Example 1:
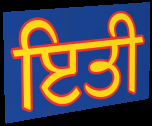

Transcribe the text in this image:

ਇਤੀ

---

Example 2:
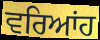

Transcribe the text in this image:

ਵਰਿਆਂਹ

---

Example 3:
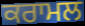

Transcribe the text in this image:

ਕਰਾਮਲ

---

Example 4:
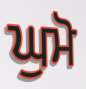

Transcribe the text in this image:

ਘੁਮੋ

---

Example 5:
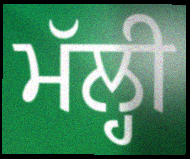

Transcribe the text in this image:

ਮੱਲ੍ਹੀ